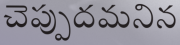
చెప్పుదమనిన